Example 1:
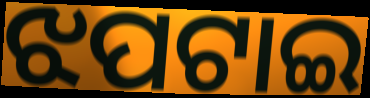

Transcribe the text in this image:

ଝପଟାଇ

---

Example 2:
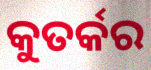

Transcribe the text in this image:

କୁତର୍କର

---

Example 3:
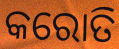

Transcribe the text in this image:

କରୋତି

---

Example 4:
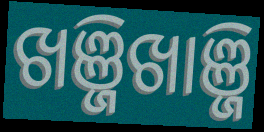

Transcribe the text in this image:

ଖଞ୍ଜିଖାଞ୍ଜି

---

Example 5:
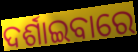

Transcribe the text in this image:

ଦର୍ଶାଇବାରେ